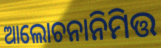
ଆଲୋଚନାନିମିତ୍ତ